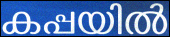
കപ്പയിൽ